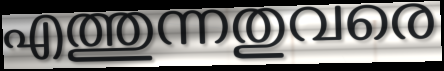
എത്തുന്നതുവരെ